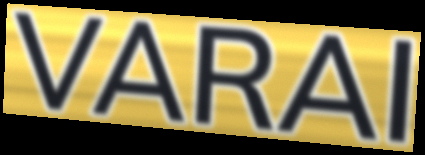
VARAI